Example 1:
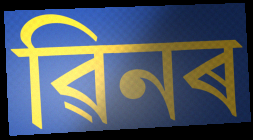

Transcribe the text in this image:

ৱিনৰ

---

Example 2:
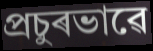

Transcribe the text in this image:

প্ৰচুৰভাৱে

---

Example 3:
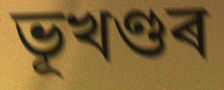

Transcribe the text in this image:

ভূখণ্ডৰ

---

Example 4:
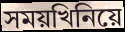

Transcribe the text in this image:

সময়খিনিয়ে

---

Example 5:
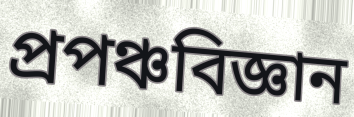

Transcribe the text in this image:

প্ৰপঞ্চবিজ্ঞান